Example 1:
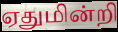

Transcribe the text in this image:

ஏதுமின்றி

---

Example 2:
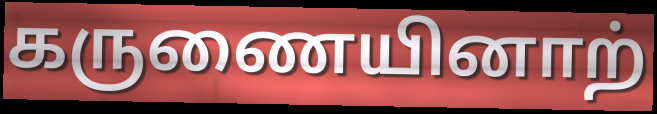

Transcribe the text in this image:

கருணையினாற்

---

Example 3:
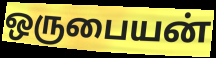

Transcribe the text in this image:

ஒருபையன்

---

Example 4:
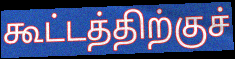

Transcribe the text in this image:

கூட்டத்திற்குச்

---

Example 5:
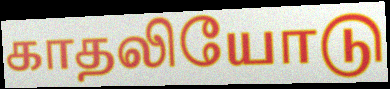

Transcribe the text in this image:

காதலியோடு